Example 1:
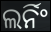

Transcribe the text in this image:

ଲର୍ନିଂ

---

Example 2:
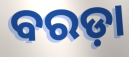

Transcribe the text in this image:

ବରଡ଼ା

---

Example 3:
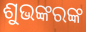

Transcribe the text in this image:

ଶୁଭଙ୍କରଙ୍କ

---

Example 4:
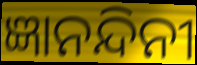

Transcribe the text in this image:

ଜ୍ଞାନନ୍ଦିନୀ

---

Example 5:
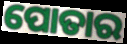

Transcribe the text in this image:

ପୋତାର